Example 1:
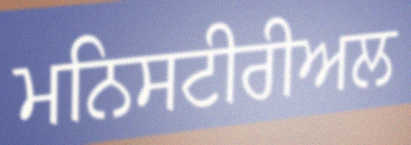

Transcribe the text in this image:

ਮਨਿਸਟੀਰੀਅਲ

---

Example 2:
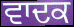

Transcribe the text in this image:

ਵਾਦਕ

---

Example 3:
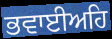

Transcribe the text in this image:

ਭਵਾਈਅਹਿ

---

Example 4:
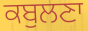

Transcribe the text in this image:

ਕਬੁਲਣਾ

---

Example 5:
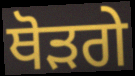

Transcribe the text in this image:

ਥੋੜਗੇ